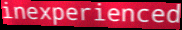
inexperienced